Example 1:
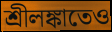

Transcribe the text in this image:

শ্রীলঙ্কাতেও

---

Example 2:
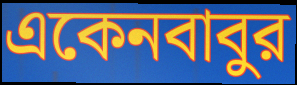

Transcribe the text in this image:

একেনবাবুর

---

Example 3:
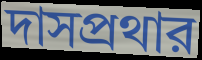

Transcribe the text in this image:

দাসপ্রথার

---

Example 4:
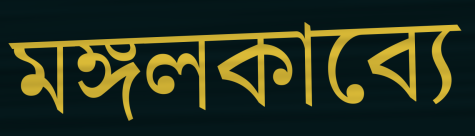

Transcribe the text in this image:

মঙ্গলকাব্যে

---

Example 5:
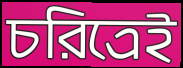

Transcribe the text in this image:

চরিত্রেই